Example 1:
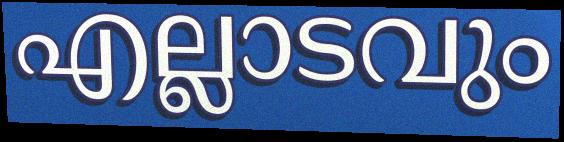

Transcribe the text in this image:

എല്ലാടവും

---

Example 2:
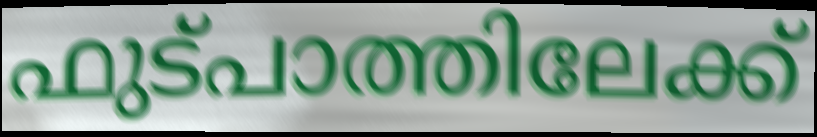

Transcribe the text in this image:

ഫുട്പാത്തിലേക്ക്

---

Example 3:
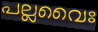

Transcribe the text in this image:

പല്ലവൈഃ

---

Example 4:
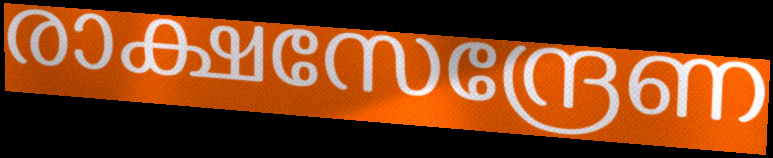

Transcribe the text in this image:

രാക്ഷസേന്ദ്രേണ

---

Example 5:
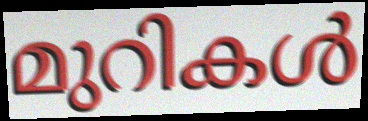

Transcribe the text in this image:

മുറികൾ